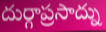
దుర్గాప్రసాద్ను